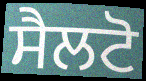
ਸੈਲਟੋ